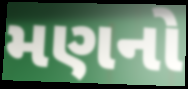
મણનો